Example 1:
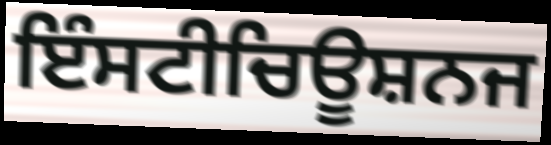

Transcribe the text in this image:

ਇੰਸਟੀਚਿਊਸ਼ਨਜ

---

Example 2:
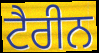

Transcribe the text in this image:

ਟੈਰੀਨ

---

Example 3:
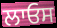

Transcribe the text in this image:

ਲਾਓਸ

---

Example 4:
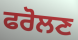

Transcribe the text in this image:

ਫਰੋਲਣ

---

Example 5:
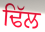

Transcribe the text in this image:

ਢਿੱਲ